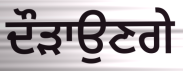
ਦੌੜਾਉਣਗੇ